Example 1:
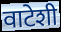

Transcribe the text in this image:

वाटेशी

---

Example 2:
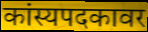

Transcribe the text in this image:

कांस्यपदकावर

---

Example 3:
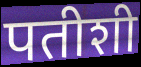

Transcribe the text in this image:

पतीशी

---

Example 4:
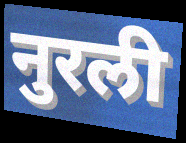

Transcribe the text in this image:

नुरली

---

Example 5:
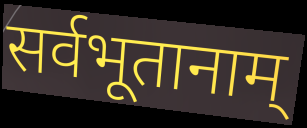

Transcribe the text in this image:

सर्वभूतानाम्